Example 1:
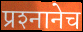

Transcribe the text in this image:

प्रश्नानेच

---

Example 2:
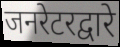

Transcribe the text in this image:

जनरेटरद्वारे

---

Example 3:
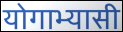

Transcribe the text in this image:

योगाभ्यासी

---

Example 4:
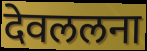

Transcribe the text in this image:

देवललना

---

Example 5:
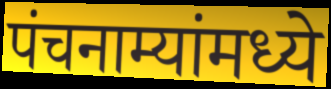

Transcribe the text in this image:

पंचनाम्यांमध्ये